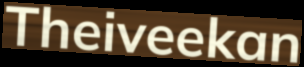
Theiveekan